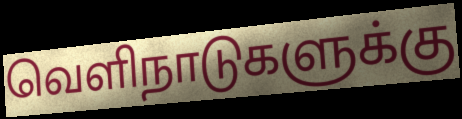
வெளிநாடுகளுக்கு